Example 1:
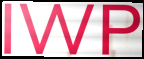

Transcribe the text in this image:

IWP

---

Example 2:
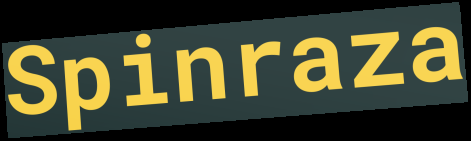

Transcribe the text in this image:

Spinraza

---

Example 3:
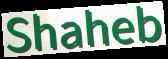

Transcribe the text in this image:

Shaheb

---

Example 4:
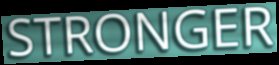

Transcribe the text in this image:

STRONGER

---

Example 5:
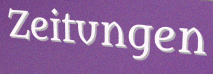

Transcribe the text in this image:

Zeitungen